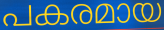
പകരമായ